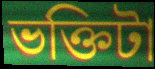
ভক্তিটা